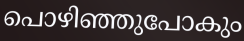
പൊഴിഞ്ഞുപോകും